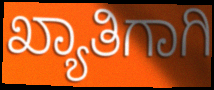
ಖ್ಯಾತಿಗಾಗಿ